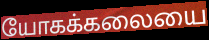
யோகக்கலையை